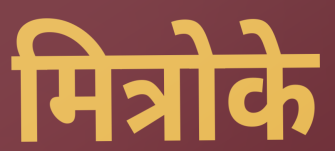
मित्रोके